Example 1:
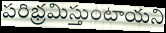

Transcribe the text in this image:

పరిభ్రమిస్తుంటాయని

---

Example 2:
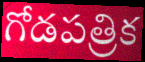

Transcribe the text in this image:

గోడపత్రిక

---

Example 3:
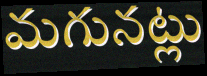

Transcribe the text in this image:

మగునట్లు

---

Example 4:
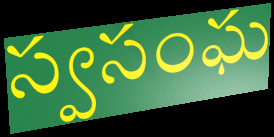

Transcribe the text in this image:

స్వసంఘ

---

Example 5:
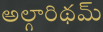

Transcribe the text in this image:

అల్గారిథమ్